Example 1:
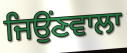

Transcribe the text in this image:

ਜਿਉਂਣਵਾਲਾ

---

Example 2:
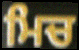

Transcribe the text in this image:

ਮਿਚ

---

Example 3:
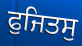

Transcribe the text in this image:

ਫੁਜਿਤਸੁ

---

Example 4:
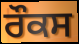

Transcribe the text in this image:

ਰੌਕਸ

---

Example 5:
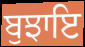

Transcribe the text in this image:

ਬੁਝਾਇ